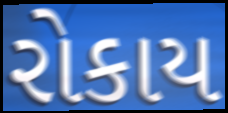
રોકાય